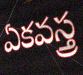
ఏకవస్త్ర